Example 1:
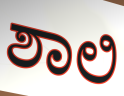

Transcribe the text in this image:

ಶಾಲಿ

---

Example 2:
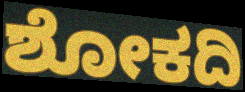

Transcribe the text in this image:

ಶೋಕದಿ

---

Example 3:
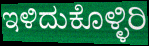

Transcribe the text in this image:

ಇಳಿದುಕೊಳ್ಳಿರಿ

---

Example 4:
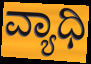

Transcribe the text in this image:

ವ್ಯಾಧಿ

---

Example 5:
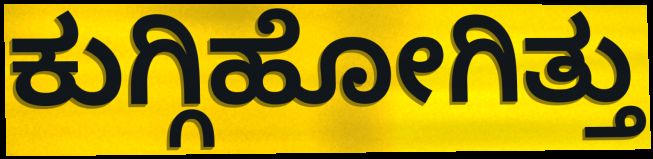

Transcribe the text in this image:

ಕುಗ್ಗಿಹೋಗಿತ್ತು